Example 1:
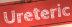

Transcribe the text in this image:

Ureteric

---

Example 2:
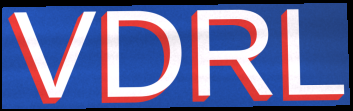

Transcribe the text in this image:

VDRL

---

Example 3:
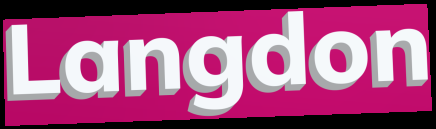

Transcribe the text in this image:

Langdon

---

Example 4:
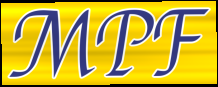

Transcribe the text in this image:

MPF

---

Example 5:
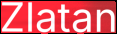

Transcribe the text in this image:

Zlatan